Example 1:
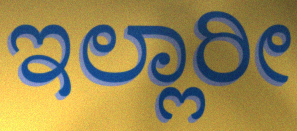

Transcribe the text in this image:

ಇಲ್ಲಾರೀ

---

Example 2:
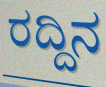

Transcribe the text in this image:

ರದ್ದಿನ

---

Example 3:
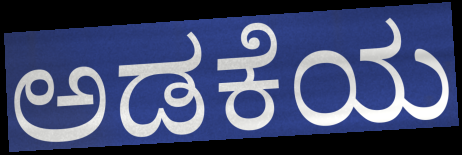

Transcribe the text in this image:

ಅಡಕೆಯ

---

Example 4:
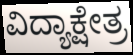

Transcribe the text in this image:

ವಿದ್ಯಾಕ್ಷೇತ್ರ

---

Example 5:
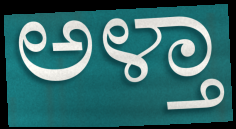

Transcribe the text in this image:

ಅಳ್ತಾ